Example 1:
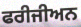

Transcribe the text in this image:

ਫਰੀਜੀਅਨ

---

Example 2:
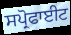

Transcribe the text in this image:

ਸਪ੍ਰੋਫਾਈਟ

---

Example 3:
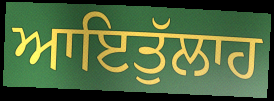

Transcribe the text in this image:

ਆਇਤੁੱਲਾਹ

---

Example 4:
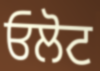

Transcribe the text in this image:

ਓਲੋਟ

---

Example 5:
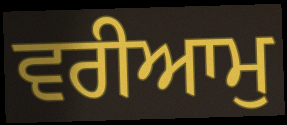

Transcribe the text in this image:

ਵਰੀਆਮੁ